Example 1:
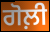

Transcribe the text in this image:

ਗੋਲ਼ੀ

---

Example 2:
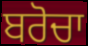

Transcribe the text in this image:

ਬਰੋਚਾ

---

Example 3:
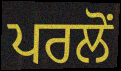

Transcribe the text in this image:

ਪਰਲੋਂ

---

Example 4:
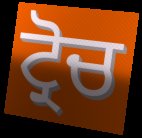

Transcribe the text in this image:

ਟ੍ਰੋਚ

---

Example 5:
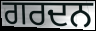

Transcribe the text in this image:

ਗਰਦਨ